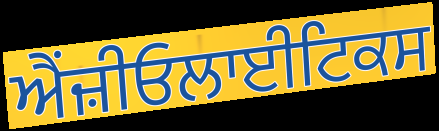
ਐਂਜ਼ੀਓਲਾਈਟਿਕਸ